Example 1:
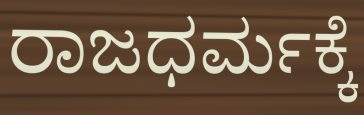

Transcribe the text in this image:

ರಾಜಧರ್ಮಕ್ಕೆ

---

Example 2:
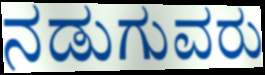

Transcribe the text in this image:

ನಡುಗುವರು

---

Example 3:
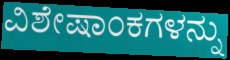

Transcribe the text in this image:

ವಿಶೇಷಾಂಕಗಳನ್ನು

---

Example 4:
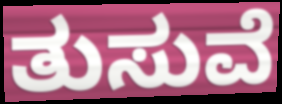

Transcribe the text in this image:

ತುಸುವೆ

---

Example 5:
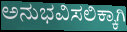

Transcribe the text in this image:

ಅನುಭವಿಸಲಿಕ್ಕಾಗಿ